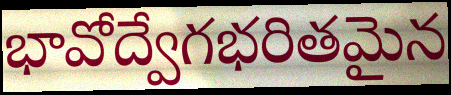
భావోద్వేగభరితమైన